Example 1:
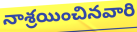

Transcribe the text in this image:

నాశ్రయించినవారి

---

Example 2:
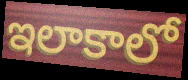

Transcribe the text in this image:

ఇలాకాలో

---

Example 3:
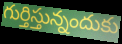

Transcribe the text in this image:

గుర్తిస్తున్నందుకు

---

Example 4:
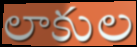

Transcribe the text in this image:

లాకుల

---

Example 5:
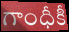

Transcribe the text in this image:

గాంధీకీ